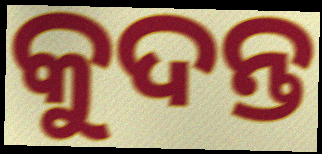
କୁଦନ୍ତ